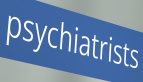
psychiatrists